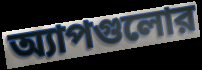
অ্যাপগুলোর